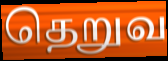
தெறுவ